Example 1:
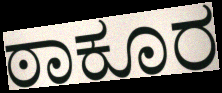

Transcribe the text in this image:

ಠಾಕೂರ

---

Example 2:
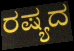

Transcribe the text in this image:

ರಷ್ಯದ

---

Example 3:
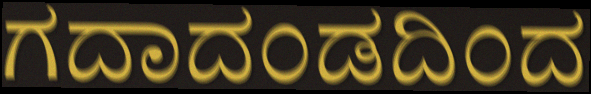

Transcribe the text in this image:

ಗದಾದಂಡದಿಂದ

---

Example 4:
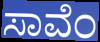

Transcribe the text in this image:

ಸಾವೆಂ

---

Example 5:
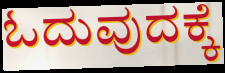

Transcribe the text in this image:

ಓದುವುದಕ್ಕೆ